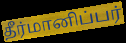
தீர்மானிப்பர்